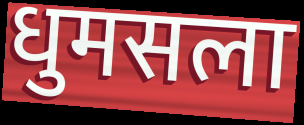
धुमसला